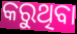
କରୁଥିବା